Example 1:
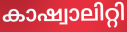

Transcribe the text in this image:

കാഷ്വാലിറ്റി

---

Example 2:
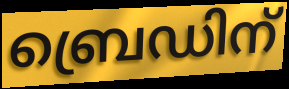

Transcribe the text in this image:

ബ്രെഡിന്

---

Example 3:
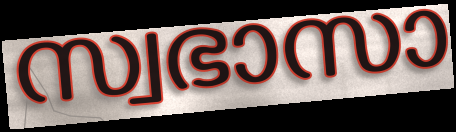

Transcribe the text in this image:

സ്വഭാസാ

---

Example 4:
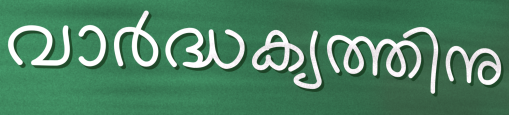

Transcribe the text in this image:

വാർദ്ധക്യത്തിനു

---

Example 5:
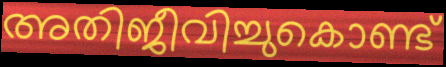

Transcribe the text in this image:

അതിജീവിച്ചുകൊണ്ട്